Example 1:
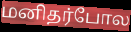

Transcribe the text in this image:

மனிதர்போல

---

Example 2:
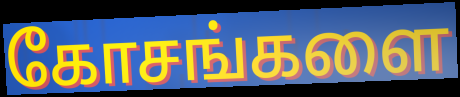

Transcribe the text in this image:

கோசங்களை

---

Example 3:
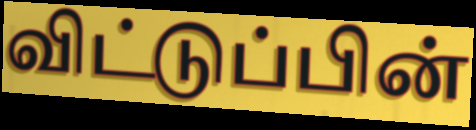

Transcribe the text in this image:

விட்டுப்பின்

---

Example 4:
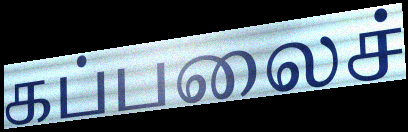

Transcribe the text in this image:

கப்பலைச்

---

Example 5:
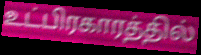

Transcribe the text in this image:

உட்பிரகாரத்தில்